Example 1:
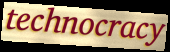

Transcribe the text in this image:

technocracy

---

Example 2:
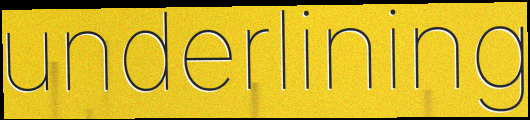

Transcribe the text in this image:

underlining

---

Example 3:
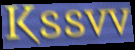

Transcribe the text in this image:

Kssvv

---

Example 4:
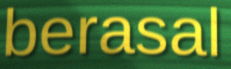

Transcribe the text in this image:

berasal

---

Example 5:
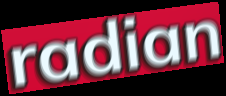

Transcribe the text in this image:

radian